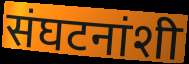
संघटनांशी